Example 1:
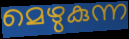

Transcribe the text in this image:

മെഴുകുന്ന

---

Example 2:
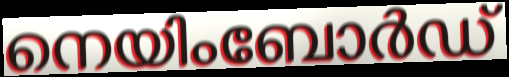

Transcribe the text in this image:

നെയിംബോർഡ്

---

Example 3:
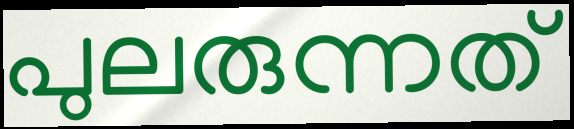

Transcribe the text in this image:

പുലരുന്നത്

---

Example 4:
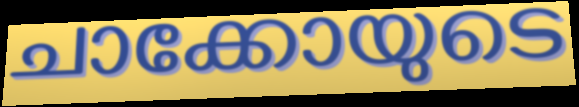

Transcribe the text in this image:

ചാക്കോയുടെ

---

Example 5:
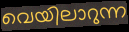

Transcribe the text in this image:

വെയിലാറുന്ന